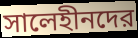
সালেহীনদের